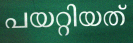
പയറ്റിയത്